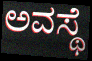
ಅವಸ್ಥೆ